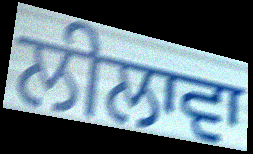
ਲੀਲਾਵਾ